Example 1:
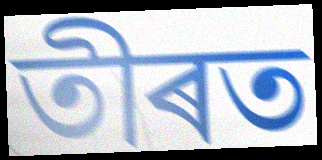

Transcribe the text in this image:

তীৰত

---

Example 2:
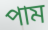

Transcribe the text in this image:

পাম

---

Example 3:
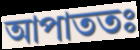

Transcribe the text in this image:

আপাততঃ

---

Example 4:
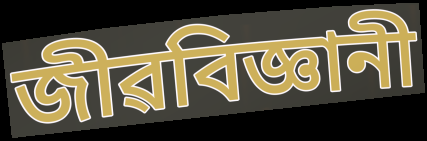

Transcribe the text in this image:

জীৱবিজ্ঞানী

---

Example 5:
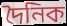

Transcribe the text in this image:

দৈনিক